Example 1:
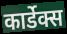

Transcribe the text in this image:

कार्डेक्स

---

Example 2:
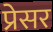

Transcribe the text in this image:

प्रेसर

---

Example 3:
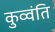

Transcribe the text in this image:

कुव्वंति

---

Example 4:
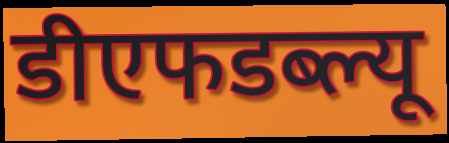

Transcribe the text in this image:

डीएफडब्ल्यू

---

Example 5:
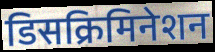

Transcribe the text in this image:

डिसक्रिमिनेशन